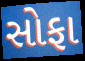
સોફા